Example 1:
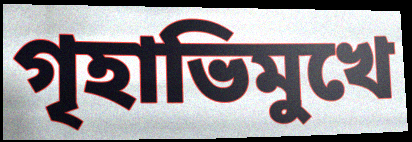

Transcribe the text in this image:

গৃহাভিমুখে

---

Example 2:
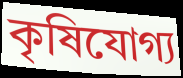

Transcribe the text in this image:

কৃষিযোগ্য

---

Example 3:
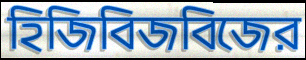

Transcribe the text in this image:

হিজিবিজবিজের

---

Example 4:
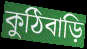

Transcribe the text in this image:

কুঠিবাড়ি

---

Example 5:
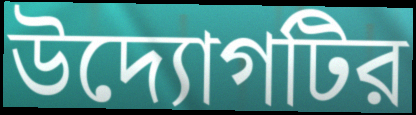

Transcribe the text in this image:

উদ্যোগটির